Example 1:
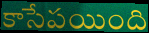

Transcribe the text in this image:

కాసేపయింది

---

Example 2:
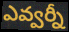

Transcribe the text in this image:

ఎవ్వర్నీ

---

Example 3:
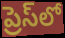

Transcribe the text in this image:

ప్రెస్‌లో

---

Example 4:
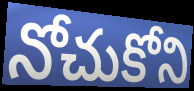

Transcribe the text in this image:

నోచుకోని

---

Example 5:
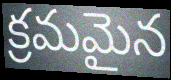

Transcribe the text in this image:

క్రమమైన